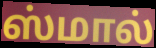
ஸ்மால்